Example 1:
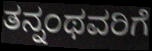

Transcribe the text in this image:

ತನ್ನಂಥವರಿಗೆ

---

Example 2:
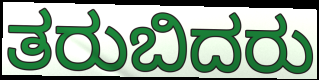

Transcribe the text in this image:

ತರುಬಿದರು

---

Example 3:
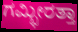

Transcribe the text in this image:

ಗಮ್ಭೀರತ್ತಾ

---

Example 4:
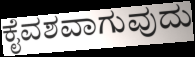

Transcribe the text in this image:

ಕೈವಶವಾಗುವುದು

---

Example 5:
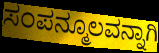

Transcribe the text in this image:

ಸಂಪನ್ಮೂಲವನ್ನಾಗಿ